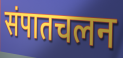
संपातचलन